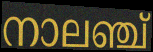
നാലഞ്ച്